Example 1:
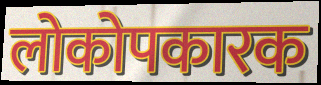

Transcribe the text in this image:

लोकोपकारक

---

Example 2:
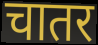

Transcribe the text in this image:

चातर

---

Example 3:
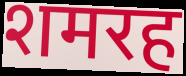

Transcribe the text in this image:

शमरह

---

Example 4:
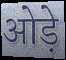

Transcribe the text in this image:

ओड़े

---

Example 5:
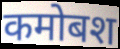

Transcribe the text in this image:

कमोबश